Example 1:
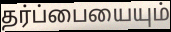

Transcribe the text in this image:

தர்ப்பையையும்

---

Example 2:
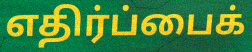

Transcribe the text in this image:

எதிர்ப்பைக்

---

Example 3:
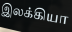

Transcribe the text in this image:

இலக்கியா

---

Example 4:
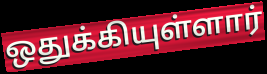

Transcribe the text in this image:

ஒதுக்கியுள்ளார்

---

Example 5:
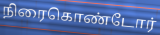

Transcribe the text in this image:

நிரைகொண்டோர்